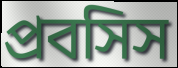
প্রবসিস